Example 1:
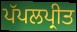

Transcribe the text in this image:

ਪੱਪਲਪ੍ਰੀਤ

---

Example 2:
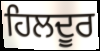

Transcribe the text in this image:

ਹਿਲਦੂਰ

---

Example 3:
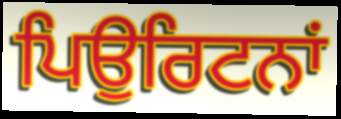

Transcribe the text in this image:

ਪਿਉਰਿਟਨਾਂ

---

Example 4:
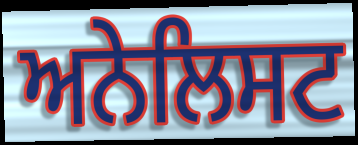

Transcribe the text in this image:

ਅਨੇਲਿਸਟ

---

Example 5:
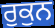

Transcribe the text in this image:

ਰੁਕੁਨ